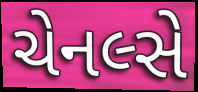
ચેનલ્સે